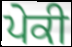
ਪੇਕੀ